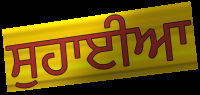
ਸੁਹਾਈਆ